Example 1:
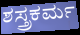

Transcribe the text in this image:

ಶಸ್ತ್ರಕರ್ಮ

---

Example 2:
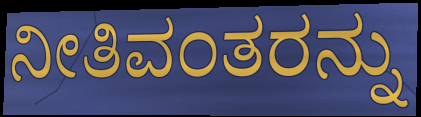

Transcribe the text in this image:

ನೀತಿವಂತರನ್ನು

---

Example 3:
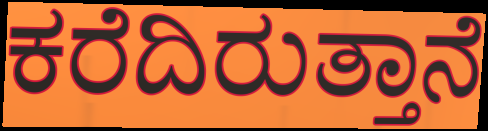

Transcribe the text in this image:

ಕರೆದಿರುತ್ತಾನೆ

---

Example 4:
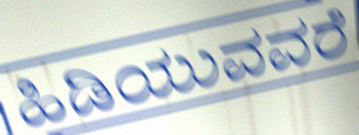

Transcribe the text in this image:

ಹಿಡಿಯುವವರೆ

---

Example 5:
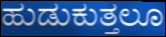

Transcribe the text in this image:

ಹುಡುಕುತ್ತಲೂ